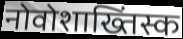
नोवोशाख्तिंस्क